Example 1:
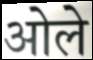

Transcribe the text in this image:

ओले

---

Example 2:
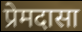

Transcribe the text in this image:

प्रेमदासा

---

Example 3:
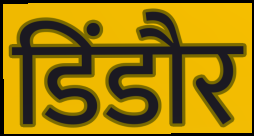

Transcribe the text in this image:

डिंडौर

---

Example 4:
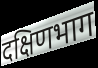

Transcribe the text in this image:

दक्षिणभाग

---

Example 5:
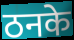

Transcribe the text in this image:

ठनके